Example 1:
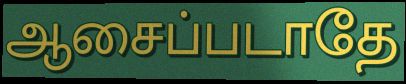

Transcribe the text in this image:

ஆசைப்படாதே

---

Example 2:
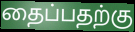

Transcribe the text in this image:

தைப்பதற்கு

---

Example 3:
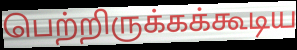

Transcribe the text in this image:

பெற்றிருக்கக்கூடிய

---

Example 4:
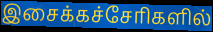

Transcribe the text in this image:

இசைக்கச்சேரிகளில்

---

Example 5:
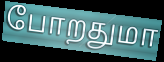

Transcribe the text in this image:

போறதுமா